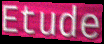
Etude